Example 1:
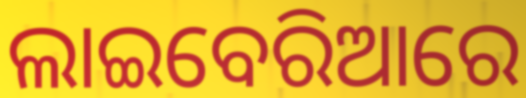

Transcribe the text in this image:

ଲାଇବେରିଆରେ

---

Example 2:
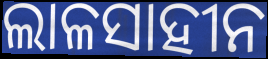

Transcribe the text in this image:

ଲାଳସାହୀନ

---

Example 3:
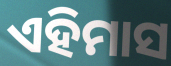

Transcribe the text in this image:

ଏହିମାସ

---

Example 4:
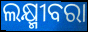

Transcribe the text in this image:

ଲକ୍ଷ୍ମୀବରା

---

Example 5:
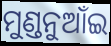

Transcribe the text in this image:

ମୁଣ୍ଡନୁଆଁଇ